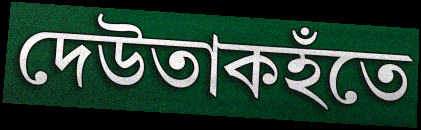
দেউতাকহঁতে